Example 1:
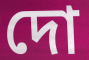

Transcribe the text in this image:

দো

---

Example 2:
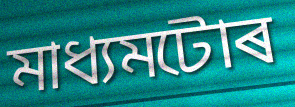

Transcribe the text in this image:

মাধ্যমটোৰ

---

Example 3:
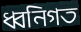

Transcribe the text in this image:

ধ্বনিগত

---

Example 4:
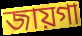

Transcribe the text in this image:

জায়গা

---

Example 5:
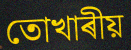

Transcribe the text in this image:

তোখাৰীয়